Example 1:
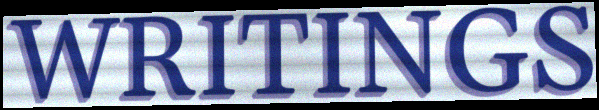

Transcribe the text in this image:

WRITINGS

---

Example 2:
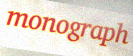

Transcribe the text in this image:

monograph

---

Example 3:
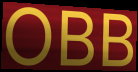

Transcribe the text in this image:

OBB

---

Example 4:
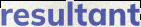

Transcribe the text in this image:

resultant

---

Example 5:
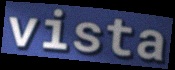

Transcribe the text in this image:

vista